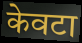
केवटा